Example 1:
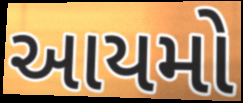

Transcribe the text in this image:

આયમો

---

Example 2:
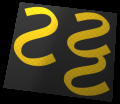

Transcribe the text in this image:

ટટ્ટ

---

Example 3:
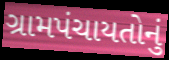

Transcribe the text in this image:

ગ્રામપંચાયતોનું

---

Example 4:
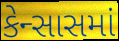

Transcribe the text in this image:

કેન્સાસમાં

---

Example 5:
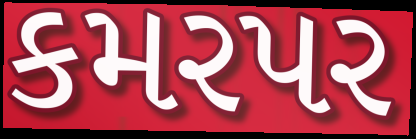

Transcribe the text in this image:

કમરપર